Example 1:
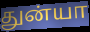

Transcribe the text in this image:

துன்யா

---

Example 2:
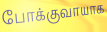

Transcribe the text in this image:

போக்குவாயாக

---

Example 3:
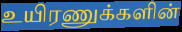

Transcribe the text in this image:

உயிரணுக்களின்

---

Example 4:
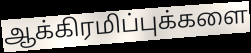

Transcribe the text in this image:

ஆக்கிரமிப்புக்களை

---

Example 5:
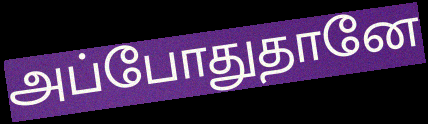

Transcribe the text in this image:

அப்போதுதானே